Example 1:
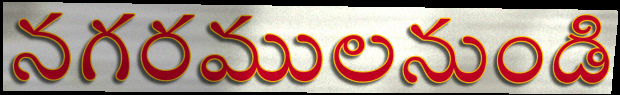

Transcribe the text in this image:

నగరములనుండి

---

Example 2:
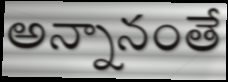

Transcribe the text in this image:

అన్నానంతే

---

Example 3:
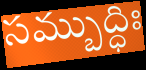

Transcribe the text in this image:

సమ్బుద్ధిః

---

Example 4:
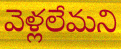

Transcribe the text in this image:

వెళ్లలేమని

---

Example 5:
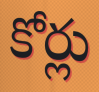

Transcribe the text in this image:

కోర్లు